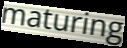
maturing